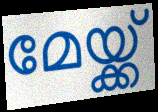
മേയ്ക്ക്